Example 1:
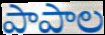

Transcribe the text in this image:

పాపాల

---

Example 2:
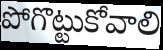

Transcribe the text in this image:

పోగొట్టుకోవాలి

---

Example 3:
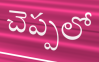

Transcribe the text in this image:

చెప్పలో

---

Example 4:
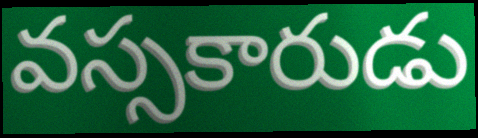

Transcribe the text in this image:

వస్సకారుడు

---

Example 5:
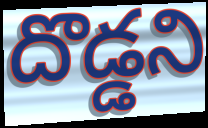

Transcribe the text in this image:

దొడ్డని